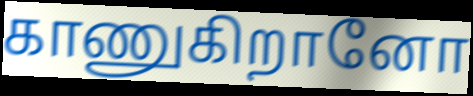
காணுகிறானோ